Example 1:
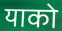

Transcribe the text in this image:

याको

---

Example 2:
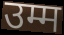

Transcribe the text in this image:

उम्म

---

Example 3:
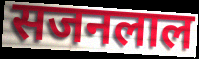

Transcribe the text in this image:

सजनलाल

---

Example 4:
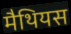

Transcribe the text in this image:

मैथियस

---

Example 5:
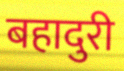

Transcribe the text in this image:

बहादुरी